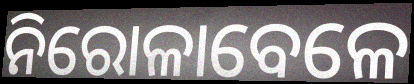
ନିରୋଳାବେଳେ